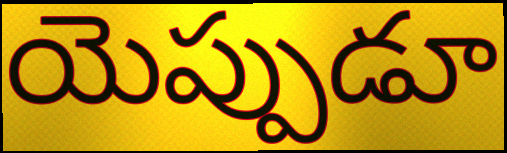
యెప్పుడూ